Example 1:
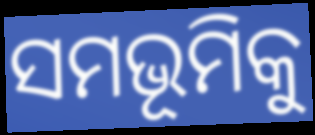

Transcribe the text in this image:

ସମଭୂମିକୁ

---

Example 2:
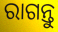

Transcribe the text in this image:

ରାଗନ୍ତୁ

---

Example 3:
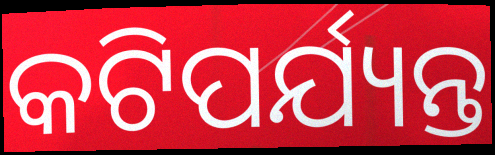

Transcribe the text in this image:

କଟିପର୍ଯ୍ୟନ୍ତ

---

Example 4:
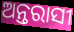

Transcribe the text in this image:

ଅନ୍ତରାସୀ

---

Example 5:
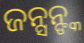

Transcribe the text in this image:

ଜନ୍ସନ୍ଙ୍କ